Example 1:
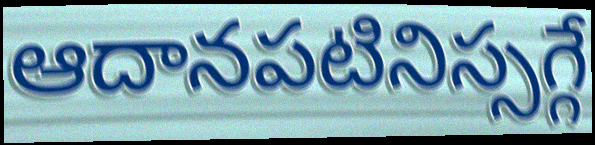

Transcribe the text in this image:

ఆదానపటినిస్సగ్గే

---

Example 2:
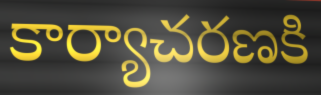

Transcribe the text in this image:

కార్యాచరణకి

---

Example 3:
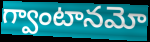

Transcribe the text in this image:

గ్వాంటానమో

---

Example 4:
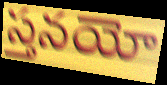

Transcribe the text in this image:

స్తనయో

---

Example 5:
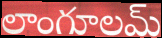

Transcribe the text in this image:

లాంగూలమ్